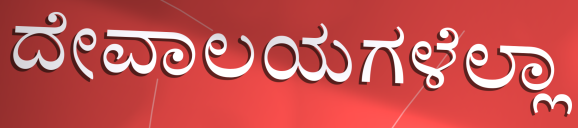
ದೇವಾಲಯಗಳೆಲ್ಲಾ